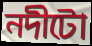
নদীটো